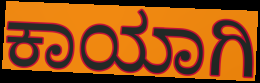
ಕಾಯಾಗಿ